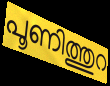
പൂണിത്തുറ